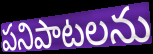
పనిపాటలను